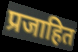
प्रजाहित